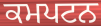
ਕਮਪਟਨ